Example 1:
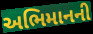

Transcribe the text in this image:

અભિમાનની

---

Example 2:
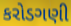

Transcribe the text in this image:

કરોડગણી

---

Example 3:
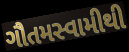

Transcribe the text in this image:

ગૌતમસ્વામીથી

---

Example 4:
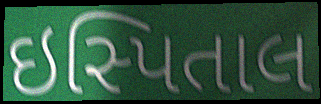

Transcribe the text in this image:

ઇસ્પિતાલ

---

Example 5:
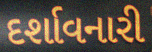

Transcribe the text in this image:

દર્શાવનારી